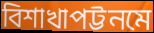
বিশাখাপট্টনমে